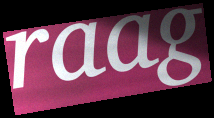
raag